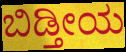
ಬಿಡ್ತೀಯ